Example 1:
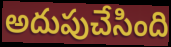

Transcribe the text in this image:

అదుపుచేసింది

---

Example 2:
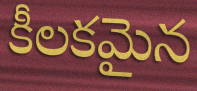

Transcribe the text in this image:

కీలకమైన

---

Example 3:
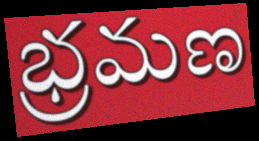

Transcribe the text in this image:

భ్రమణ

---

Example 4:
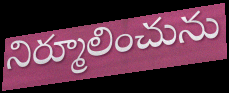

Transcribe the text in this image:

నిర్మూలించును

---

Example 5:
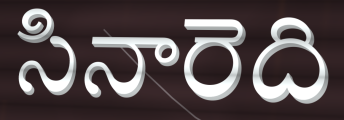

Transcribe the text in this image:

సినారెది